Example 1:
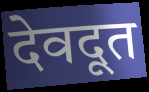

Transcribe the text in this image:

देवदूत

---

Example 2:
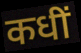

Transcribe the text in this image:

कधीं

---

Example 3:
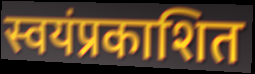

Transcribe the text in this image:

स्वयंप्रकाशित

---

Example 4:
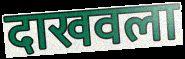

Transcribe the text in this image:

दाखवला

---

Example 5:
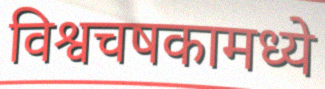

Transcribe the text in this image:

विश्वचषकामध्ये